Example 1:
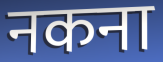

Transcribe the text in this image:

नकना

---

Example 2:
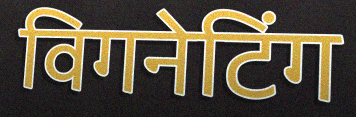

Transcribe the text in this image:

विगनेटिंग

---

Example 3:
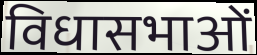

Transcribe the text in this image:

विधासभाओं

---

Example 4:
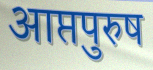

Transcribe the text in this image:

आप्तपुरुष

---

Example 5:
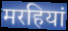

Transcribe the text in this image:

मरहियां